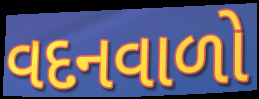
વદનવાળો